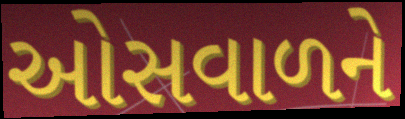
ઓસવાળને